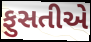
ફુસતીએ